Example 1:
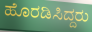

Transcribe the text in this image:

ಹೊರಡಿಸಿದ್ದರು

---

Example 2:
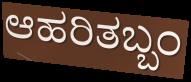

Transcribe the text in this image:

ಆಹರಿತಬ್ಬಂ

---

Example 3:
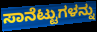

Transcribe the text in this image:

ಸಾನೆಟ್ಟುಗಳನ್ನು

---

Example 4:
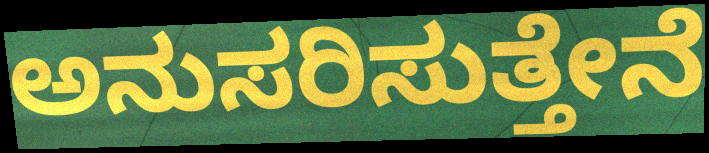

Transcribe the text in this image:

ಅನುಸರಿಸುತ್ತೇನೆ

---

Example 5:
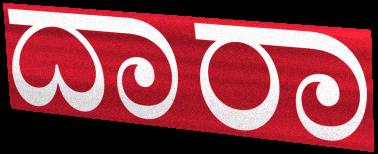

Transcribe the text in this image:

ದಾರಾ